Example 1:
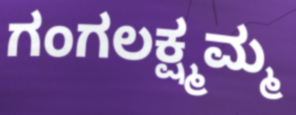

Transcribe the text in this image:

ಗಂಗಲಕ್ಷ್ಮಮ್ಮ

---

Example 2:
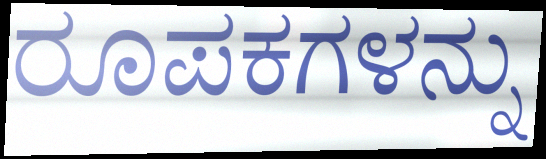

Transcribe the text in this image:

ರೂಪಕಗಳನ್ನು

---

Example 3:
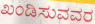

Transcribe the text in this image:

ಖಂಡಿಸುವವರ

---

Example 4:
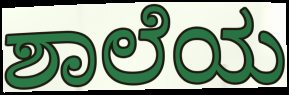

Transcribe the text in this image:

ಶಾಲೆಯ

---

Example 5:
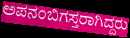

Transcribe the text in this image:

ಅಪನಂಬಿಗಸ್ತರಾಗಿದ್ದರು